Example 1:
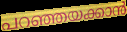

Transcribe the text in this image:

പറഞ്ഞയക്കാൻ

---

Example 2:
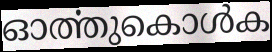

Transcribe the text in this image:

ഓൎത്തുകൊൾക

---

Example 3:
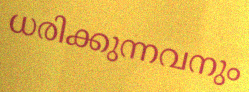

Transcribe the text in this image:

ധരിക്കുന്നവനും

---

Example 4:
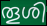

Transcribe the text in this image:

തൂശി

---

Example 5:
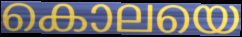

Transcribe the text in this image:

കൊലയെ